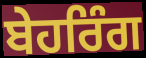
ਬੇਹਰਿੰਗ